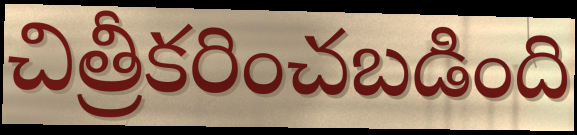
చిత్రీకరించబడింది